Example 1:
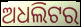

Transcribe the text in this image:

ଅଧଲିଟର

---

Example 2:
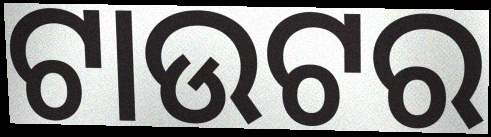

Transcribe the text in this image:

ଟାଉଟର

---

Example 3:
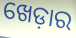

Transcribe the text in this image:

ଖେଡ଼ାର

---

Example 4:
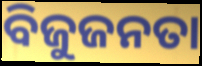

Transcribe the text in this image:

ବିଜୁଜନତା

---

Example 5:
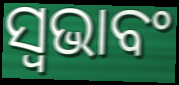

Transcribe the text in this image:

ସ୍ଵଭାବଂ